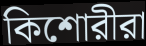
কিশোরীরা